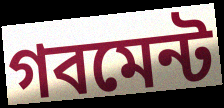
গবমেন্ট